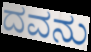
ದವನು